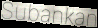
Subankan